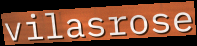
vilasrose